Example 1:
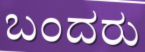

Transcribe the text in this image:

ಬಂದರು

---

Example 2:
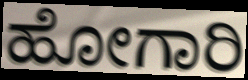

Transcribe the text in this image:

ಹೋಗಾರಿ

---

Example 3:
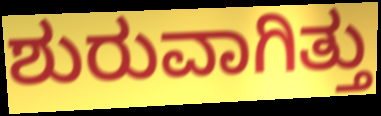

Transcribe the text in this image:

ಶುರುವಾಗಿತ್ತು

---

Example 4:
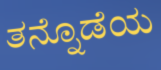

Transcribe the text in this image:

ತನ್ನೊಡೆಯ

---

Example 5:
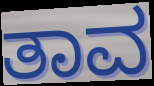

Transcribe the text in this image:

ತಾವ